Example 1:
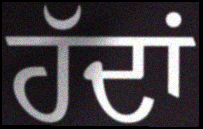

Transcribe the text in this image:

ਹੱਦਾਂ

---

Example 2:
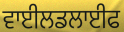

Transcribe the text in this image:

ਵਾਈਲਡਲਾਈਫ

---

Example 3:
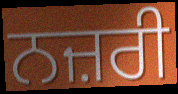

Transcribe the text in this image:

ਨਜ਼ਰੀ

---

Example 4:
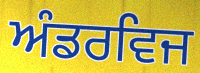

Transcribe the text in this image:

ਅੰਡਰਵਿਜ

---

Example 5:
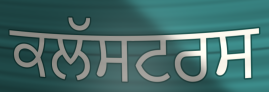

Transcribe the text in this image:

ਕਲੱਸਟਰਸ